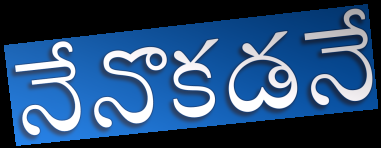
నేనొకడనే